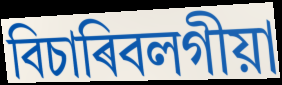
বিচাৰিবলগীয়া